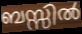
ബസ്സിൽ